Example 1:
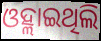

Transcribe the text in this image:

ଓହ୍ଲାଇଥିଲି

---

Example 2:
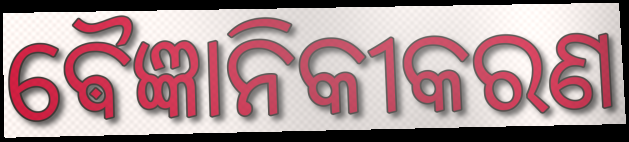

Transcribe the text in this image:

ଵୈଜ୍ଞାନିକୀକରଣ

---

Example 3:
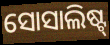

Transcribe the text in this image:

ସୋସାଲିଷ୍ଟ୍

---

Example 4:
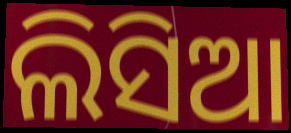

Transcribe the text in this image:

ଲିସିଆ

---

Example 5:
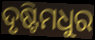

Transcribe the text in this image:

ଦୃଷ୍ଟିମଧୁର